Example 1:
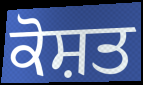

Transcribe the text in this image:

ਕੋਸ਼ਤ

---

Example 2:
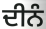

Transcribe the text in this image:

ਦੀਨੰ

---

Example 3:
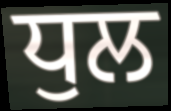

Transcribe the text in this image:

ਧੁਲ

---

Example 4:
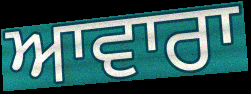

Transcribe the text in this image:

ਆਵਾਰਾ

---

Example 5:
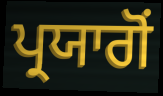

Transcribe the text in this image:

ਪ੍ਰਯਾਗੋਂ